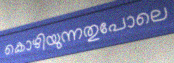
കൊഴിയുന്നതുപോലെ